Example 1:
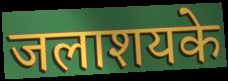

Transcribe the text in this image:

जलाशयके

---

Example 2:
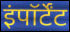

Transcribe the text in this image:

इंपॉर्टेंट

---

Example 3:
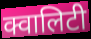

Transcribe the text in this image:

क्वालिटी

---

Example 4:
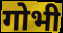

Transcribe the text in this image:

गोभी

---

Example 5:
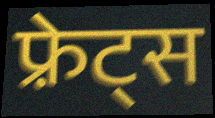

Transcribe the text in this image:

फ़्रेट्स